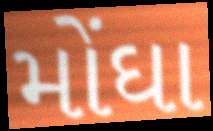
મોંઘા